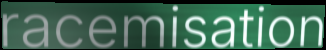
racemisation